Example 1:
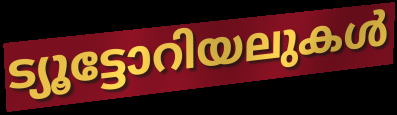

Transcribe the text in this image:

ട്യൂട്ടോറിയലുകൾ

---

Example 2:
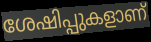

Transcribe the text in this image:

ശേഷിപ്പുകളാണ്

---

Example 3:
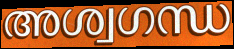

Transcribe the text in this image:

അശ്വഗന്ധ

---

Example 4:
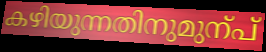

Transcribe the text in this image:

കഴിയുന്നതിനുമുന്പ്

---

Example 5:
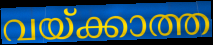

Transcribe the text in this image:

വയ്ക്കാത്ത